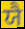
ਯੈ